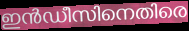
ഇൻഡീസിനെതിരെ